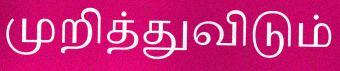
முறித்துவிடும்